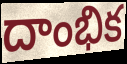
దాంభిక